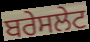
ਬਰੇਸਲੇਟ